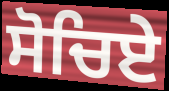
ਸੋਚਿਏ